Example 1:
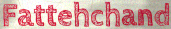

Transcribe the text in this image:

Fattehchand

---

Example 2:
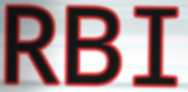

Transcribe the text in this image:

RBI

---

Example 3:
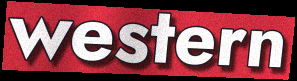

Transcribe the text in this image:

western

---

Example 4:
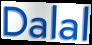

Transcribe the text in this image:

Dalal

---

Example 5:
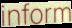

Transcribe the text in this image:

inform